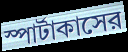
স্পার্টাকাসের